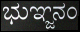
ಭುಞ್ಜನಂ